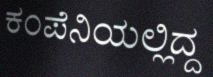
ಕಂಪೆನಿಯಲ್ಲಿದ್ದ